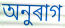
অনুৰাগ